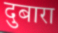
दुबारा